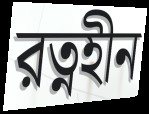
রত্নহীন